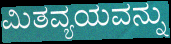
ಮಿತವ್ಯಯವನ್ನು